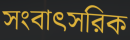
সংবাৎসরিক